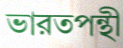
ভারতপন্থী